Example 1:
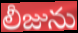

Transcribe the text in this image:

లీజును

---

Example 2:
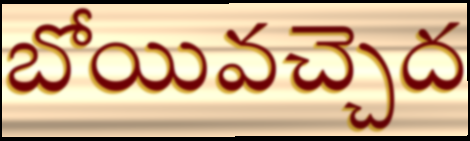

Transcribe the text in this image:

బోయివచ్చెద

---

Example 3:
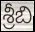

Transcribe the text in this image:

శ్రీబి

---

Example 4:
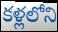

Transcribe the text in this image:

కళ్లలోని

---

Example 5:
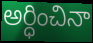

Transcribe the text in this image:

అర్ధించినా